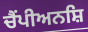
ਚੈਂਪੀਅਨਸ਼ਿ